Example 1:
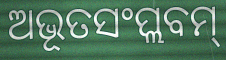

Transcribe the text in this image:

ଅଭୂତସଂପ୍ଲବମ୍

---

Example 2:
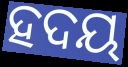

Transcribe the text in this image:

ହଦୟ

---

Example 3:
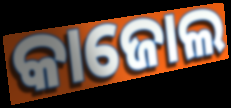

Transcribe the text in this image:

କାଜୋଲ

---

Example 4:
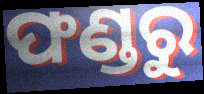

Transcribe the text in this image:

ଫଣ୍ଡରୁ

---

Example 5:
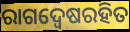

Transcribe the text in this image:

ରାଗଦ୍ୱେଷରହିତ